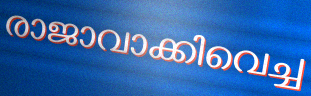
രാജാവാക്കിവെച്ച